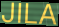
JILA